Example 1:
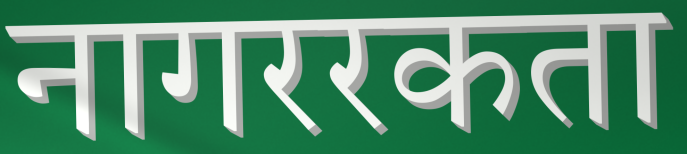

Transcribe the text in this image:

नागररकता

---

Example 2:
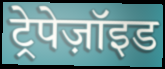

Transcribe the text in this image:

ट्रेपेज़ॉइड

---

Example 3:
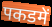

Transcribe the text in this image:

पकडमें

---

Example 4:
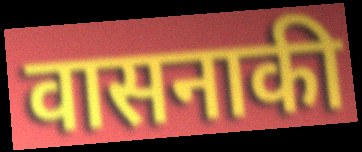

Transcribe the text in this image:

वासनाकी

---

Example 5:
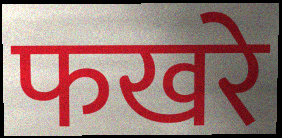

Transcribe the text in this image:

फखरे